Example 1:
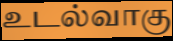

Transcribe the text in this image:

உடல்வாகு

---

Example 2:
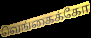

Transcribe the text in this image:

வெங்கைக்கோ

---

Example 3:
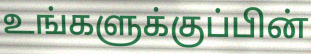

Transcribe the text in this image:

உங்களுக்குப்பின்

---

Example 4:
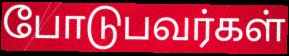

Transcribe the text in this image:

போடுபவர்கள்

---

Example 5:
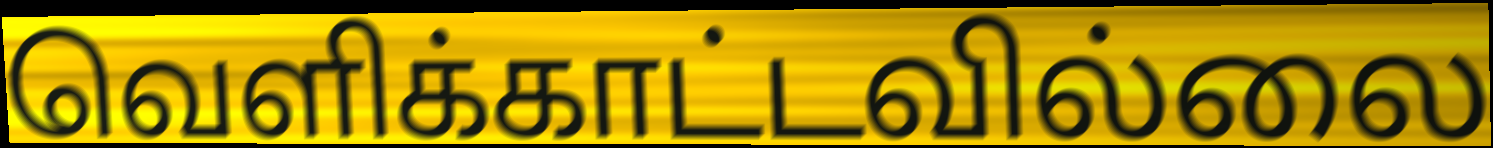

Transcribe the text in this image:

வெளிக்காட்டவில்லை